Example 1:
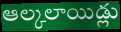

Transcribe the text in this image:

ఆల్కలాయిడ్లు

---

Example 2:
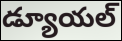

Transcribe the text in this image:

డ్యూయల్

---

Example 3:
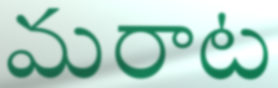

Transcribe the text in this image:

మరాట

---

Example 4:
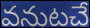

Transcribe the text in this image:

వనుటచే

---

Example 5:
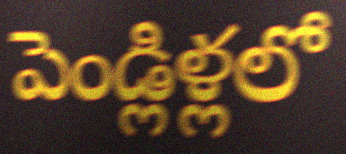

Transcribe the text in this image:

పెండ్లిళ్లలో